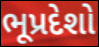
ભૂપ્રદેશો